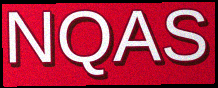
NQAS